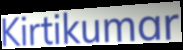
Kirtikumar